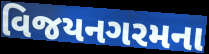
વિજયનગરમના